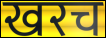
खरच